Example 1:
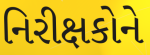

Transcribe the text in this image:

નિરીક્ષકોને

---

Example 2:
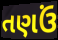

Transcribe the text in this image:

તણઉં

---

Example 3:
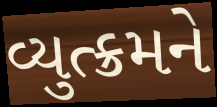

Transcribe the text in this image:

વ્યુત્ક્રમને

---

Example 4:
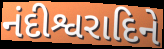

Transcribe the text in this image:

નંદીશ્વરાદિને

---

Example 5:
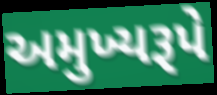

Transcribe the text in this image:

અમુખ્યરૂપે